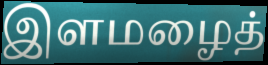
இளமழைத்